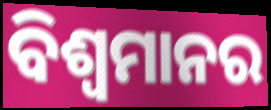
ବିଶ୍ୱମାନର